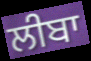
ਲੀਬਾ